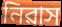
নিৱাস